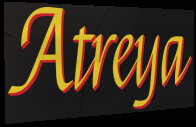
Atreya